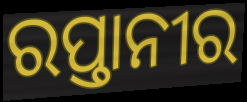
ରପ୍ତାନୀର